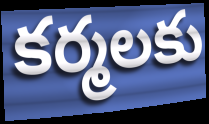
కర్మలకు